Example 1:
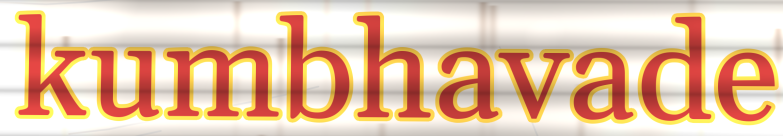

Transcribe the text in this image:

kumbhavade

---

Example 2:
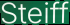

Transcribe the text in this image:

Steiff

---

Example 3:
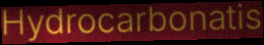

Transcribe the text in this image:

Hydrocarbonatis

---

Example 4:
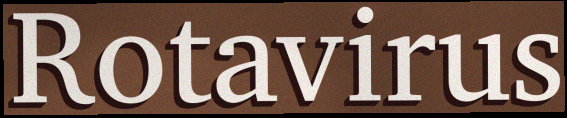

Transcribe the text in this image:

Rotavirus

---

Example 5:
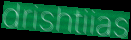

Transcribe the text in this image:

drishtiias